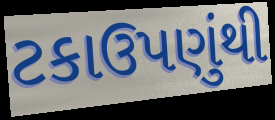
ટકાઉપણુંથી